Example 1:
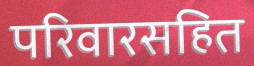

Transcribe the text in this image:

परिवारसहित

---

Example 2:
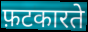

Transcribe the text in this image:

फ़टकारते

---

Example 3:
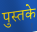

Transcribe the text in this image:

पुस्तके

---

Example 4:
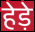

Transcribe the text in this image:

हेड़े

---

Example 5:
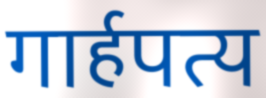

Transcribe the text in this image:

गार्हपत्य